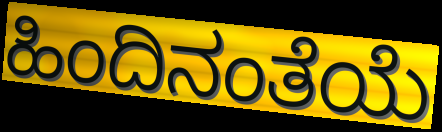
ಹಿಂದಿನಂತೆಯೆ